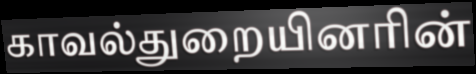
காவல்துறையினரின்